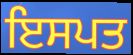
ਇਸਪਤ